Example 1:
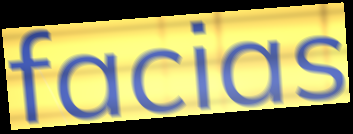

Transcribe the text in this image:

facias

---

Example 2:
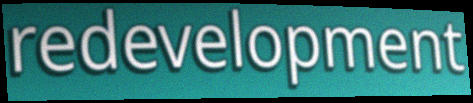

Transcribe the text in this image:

redevelopment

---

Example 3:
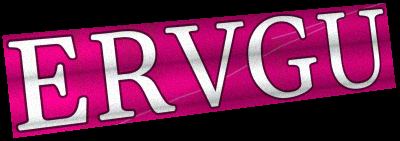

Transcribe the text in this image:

ERVGU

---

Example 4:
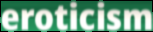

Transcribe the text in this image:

eroticism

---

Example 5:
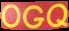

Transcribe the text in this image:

OGQ